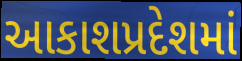
આકાશપ્રદેશમાં